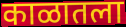
काळातला